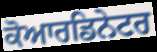
ਕੋਆਰਡਿਨੇਟਰ